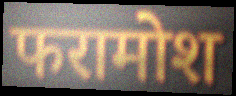
फरामोश